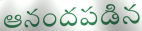
ఆనందపడిన